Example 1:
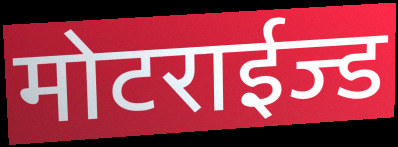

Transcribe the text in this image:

मोटराईज्ड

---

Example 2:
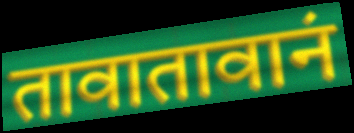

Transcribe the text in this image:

तावातावानं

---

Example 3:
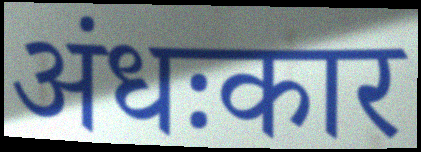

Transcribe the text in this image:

अंधःकार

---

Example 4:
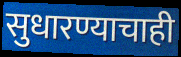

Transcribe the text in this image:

सुधारण्याचाही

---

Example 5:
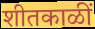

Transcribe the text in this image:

शीतकाळीं